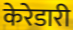
केरेडारी